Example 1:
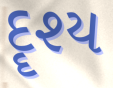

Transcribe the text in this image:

દૄશ્ય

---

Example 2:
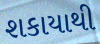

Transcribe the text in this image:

શકાયાથી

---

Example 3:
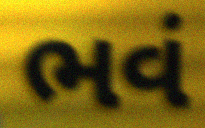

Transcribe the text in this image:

ભવં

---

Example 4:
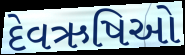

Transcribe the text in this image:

દેવઋષિઓ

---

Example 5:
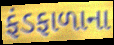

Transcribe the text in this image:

ફંડફાળાના